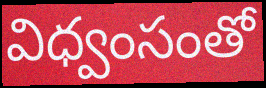
విధ్వంసంతో